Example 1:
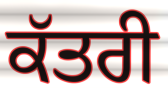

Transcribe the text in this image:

ਕੱਤਰੀ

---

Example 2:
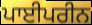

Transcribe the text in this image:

ਪਾਈਪਰੀਨ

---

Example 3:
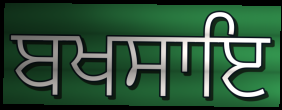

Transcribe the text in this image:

ਬਖਸਾਇ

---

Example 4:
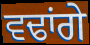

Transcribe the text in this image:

ਵਢਾਂਗੇ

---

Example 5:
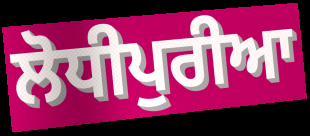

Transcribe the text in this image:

ਲੋਧੀਪੁਰੀਆ